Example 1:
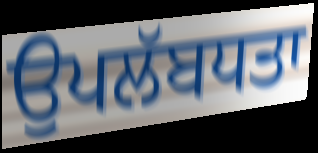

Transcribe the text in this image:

ਉਪਲੱਬਧਤਾ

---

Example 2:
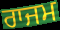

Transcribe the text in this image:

ਰਾਜਮ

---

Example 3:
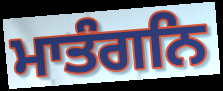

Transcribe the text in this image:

ਮਾਤੰਗਨਿ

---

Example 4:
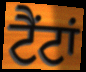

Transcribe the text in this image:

ਟੈਂਟਾਂ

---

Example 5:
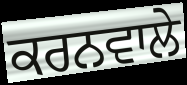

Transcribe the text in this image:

ਕਰਨਵਾਲੇ